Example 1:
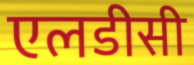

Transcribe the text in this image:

एलडीसी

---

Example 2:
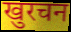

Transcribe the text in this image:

खुरचन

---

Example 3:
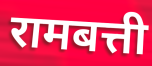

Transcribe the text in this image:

रामबत्ती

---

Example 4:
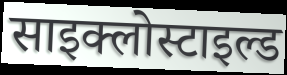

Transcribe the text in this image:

साइक्लोस्टाइल्ड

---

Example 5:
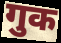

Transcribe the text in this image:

गुक